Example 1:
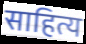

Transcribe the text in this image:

साहित्य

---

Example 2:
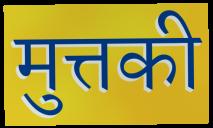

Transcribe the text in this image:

मुत्तकी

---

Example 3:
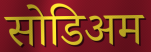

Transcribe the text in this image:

सोडिअम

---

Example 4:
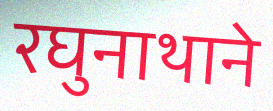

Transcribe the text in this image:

रघुनाथाने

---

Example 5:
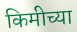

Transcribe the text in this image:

किमीच्या